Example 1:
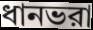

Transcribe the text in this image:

ধানভরা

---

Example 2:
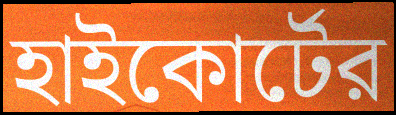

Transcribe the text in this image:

হাইকোর্টের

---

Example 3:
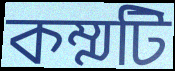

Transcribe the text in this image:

কম্মটি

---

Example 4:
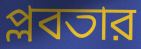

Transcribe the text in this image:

প্লবতার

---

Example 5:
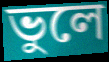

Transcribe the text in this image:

ভুলে